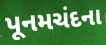
પૂનમચંદના